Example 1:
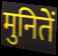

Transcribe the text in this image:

मुनितें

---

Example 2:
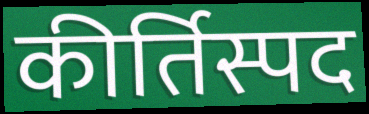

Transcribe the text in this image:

कीर्तिस्पद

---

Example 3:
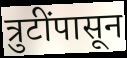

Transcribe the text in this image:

त्रुटींपासून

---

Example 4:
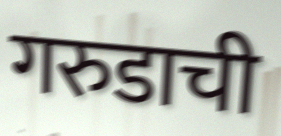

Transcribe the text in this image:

गरुडाची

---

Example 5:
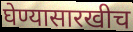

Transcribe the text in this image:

घेण्यासारखीच